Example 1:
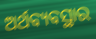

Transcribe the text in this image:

ଅର୍ଥବ୍ୟବସ୍ଥାର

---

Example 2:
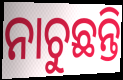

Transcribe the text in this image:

ନାଚୁଛନ୍ତି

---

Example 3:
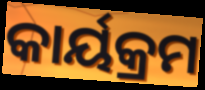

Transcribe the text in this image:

କାର୍ୟକ୍ରମ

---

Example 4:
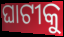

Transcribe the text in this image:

ଘାଟୀକୁ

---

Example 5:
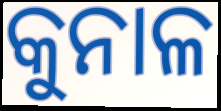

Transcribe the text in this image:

କୁନାଳ